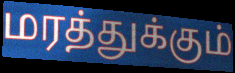
மரத்துக்கும்